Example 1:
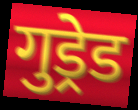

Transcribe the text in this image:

गुड्रेड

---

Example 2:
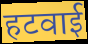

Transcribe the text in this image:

हटवाई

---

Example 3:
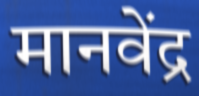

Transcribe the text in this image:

मानवेंद्र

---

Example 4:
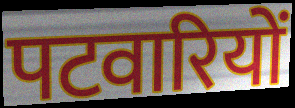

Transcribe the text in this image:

पटवारियों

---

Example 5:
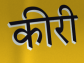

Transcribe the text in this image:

कीरी